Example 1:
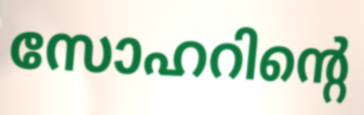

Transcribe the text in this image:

സോഹറിന്റെ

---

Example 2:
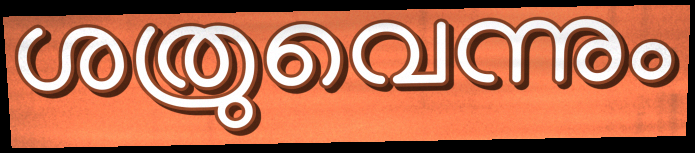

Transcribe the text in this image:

ശത്രുവെന്നും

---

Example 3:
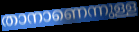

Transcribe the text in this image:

താനാണെന്നുള്ള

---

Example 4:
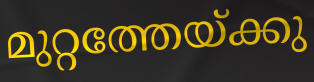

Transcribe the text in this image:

മുറ്റത്തേയ്ക്കു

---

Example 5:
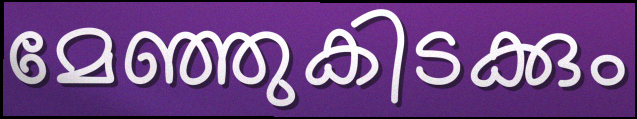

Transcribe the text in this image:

മേഞ്ഞുകിടക്കും